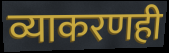
व्याकरणही